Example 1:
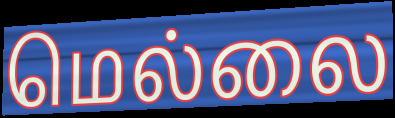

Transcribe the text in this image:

மெல்லை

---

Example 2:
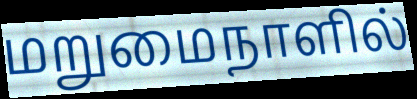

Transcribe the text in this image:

மறுமைநாளில்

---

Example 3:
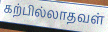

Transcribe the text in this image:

கற்பில்லாதவள்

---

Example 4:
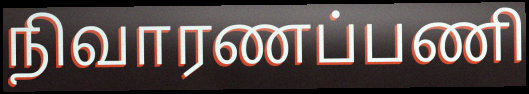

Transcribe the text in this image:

நிவாரணப்பணி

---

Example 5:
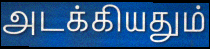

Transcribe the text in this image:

அடக்கியதும்